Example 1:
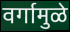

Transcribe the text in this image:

वर्गामुळे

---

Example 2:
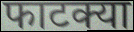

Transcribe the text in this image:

फाटक्या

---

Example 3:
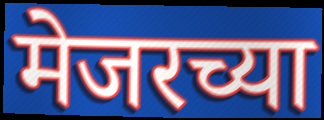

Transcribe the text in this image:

मेजरच्या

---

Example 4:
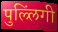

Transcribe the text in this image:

पुल्लिंगी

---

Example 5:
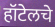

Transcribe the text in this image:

हॉटेलचे